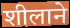
शीलाने